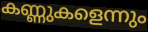
കണ്ണുകളെന്നും